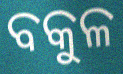
ବକୁଳ